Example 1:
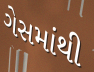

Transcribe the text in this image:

ગેસમાંથી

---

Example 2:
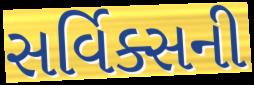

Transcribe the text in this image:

સર્વિક્સની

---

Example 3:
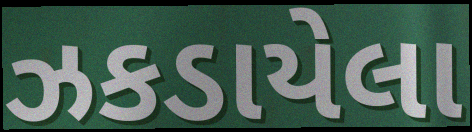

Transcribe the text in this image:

ઝકડાયેલા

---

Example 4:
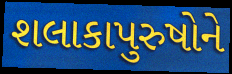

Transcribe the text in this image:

શલાકાપુરુષોને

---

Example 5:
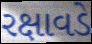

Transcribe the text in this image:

રક્ષાવડે